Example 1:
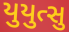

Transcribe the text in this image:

યુયુત્સુ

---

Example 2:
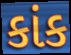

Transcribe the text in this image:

કાંક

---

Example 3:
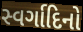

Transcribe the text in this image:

સ્વર્ગાદિનો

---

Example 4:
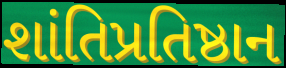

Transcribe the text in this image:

શાંતિપ્રતિષ્ઠાન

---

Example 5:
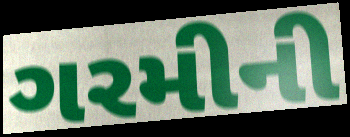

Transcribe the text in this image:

ગરમીની